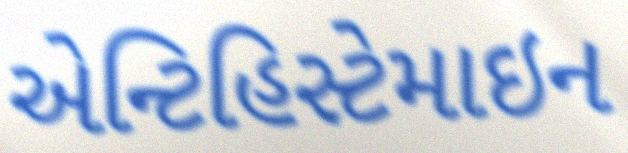
એન્ટિહિસ્ટેમાઇન